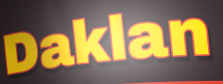
Daklan